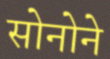
सोनोने